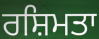
ਰਸ਼ਿਮਤਾ